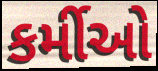
કર્મીઓ